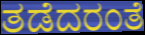
ತಡೆದರಂತೆ